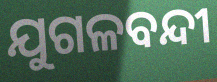
ଯୁଗଳବନ୍ଦୀ